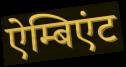
ऐम्बिएंट